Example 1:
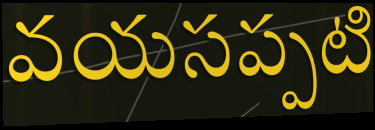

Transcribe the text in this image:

వయసప్పటి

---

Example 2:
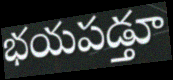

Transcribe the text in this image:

భయపడ్తూ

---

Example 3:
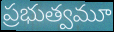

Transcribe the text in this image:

ప్రభుత్వమూ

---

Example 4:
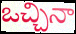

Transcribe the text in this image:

ఒచ్చినా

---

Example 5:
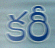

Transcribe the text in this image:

కరీ